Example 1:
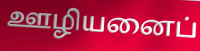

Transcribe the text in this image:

ஊழியனைப்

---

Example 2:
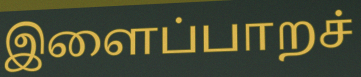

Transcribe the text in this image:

இளைப்பாறச்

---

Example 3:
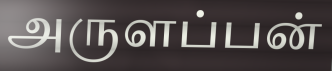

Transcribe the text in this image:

அருளப்பன்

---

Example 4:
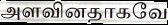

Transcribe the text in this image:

அளவினதாகவே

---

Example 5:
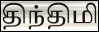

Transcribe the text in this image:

திந்திமி